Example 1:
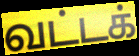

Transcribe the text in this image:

வட்டக்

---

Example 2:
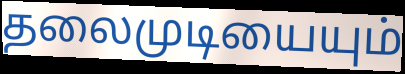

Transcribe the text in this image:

தலைமுடியையும்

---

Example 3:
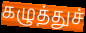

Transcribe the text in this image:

கழுத்துச்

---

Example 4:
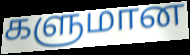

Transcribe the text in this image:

களுமான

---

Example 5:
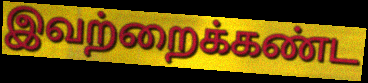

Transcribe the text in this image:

இவற்றைக்கண்ட